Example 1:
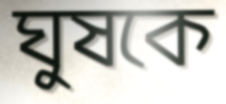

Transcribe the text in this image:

ঘুষকে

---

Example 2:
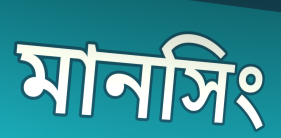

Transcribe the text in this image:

মানসিং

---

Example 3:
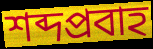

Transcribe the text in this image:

শব্দপ্রবাহ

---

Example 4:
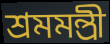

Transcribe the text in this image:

শ্রমমন্ত্রী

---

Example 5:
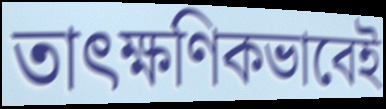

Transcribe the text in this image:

তাৎক্ষণিকভাবেই